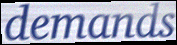
demands